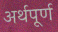
अर्थपूर्ण